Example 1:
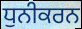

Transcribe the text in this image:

ਧੁਨੀਕਰਨ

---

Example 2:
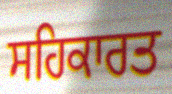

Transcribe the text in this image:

ਸਹਿਕਾਰਤ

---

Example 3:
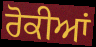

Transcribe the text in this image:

ਰੋਕੀਆਂ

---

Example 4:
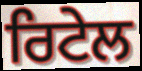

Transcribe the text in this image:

ਰਿਟੇਲ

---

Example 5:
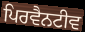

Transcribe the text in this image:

ਪਿਰਵੈਨਟੀਵ